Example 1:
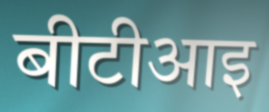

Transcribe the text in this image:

बीटीआइ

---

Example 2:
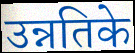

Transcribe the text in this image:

उन्नतिके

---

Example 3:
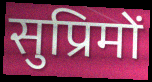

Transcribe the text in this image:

सुप्रिमों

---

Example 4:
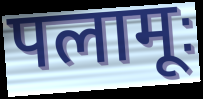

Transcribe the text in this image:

पलामूः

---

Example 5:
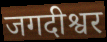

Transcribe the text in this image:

जगदीश्वर